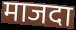
माजदा